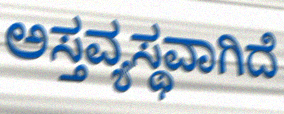
ಅಸ್ತವ್ಯಸ್ಥವಾಗಿದೆ